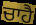
ਚਾਹੈ